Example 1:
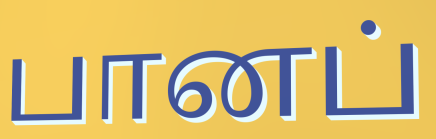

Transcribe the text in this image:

பானப்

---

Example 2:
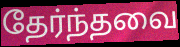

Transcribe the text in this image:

தேர்ந்தவை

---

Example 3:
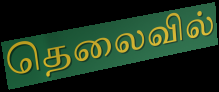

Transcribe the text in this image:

தெலைவில்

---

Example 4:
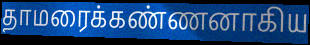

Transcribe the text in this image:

தாமரைக்கண்ணனாகிய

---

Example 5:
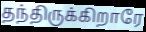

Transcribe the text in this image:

தந்திருக்கிறாரே